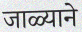
जाळ्याने